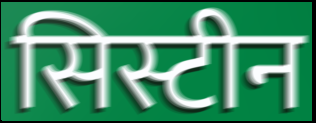
सिस्टीन